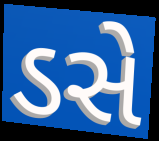
ડસે